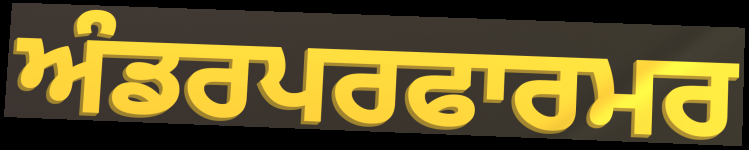
ਅੰਡਰਪਰਫਾਰਮਰ